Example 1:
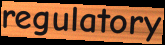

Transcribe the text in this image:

regulatory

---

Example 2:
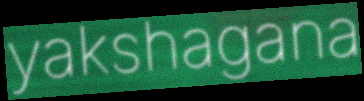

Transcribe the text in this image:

yakshagana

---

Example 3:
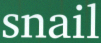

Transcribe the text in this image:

snail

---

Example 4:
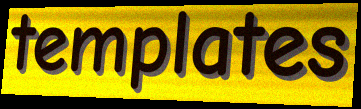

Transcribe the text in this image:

templates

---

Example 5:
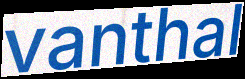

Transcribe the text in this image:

vanthal